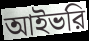
আইভরি